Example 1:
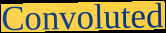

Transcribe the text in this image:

Convoluted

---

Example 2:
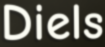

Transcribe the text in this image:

Diels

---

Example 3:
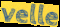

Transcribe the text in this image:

velle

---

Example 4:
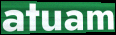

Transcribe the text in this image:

atuam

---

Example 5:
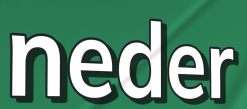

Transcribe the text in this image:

neder